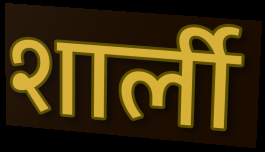
शार्ली